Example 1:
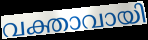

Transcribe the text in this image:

വക്താവായി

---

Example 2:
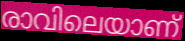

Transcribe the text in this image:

രാവിലെയാണ്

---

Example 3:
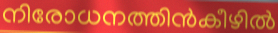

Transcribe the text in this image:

നിരോധനത്തിൻകീഴിൽ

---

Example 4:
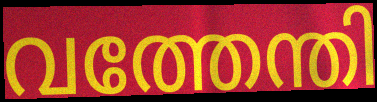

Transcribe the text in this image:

വത്തേന്തി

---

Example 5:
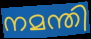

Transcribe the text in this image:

നമന്തി